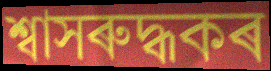
শ্বাসৰুদ্ধকৰ